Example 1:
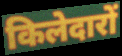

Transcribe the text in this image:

किलेदारों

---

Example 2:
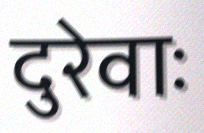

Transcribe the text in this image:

दुरेवाः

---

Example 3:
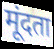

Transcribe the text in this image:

मूंदता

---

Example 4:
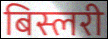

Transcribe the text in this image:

बिस्लरी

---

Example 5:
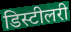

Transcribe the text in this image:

डिस्टीलरी